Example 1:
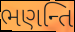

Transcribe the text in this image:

ભણન્તિ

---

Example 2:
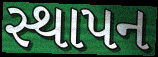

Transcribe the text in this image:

સ્થાપન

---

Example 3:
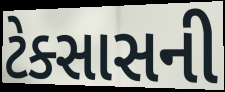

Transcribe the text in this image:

ટેક્સાસની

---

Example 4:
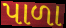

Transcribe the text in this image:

પાળા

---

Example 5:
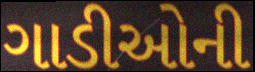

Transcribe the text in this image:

ગાડીઓની